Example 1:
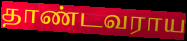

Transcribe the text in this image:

தாண்டவராய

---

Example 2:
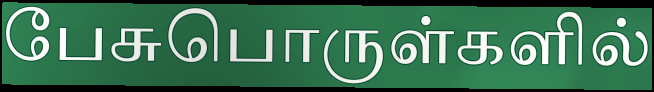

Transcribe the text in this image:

பேசுபொருள்களில்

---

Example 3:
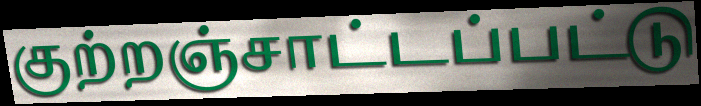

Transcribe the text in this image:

குற்றஞ்சாட்டப்பட்டு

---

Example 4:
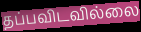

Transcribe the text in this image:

தப்பவிடவில்லை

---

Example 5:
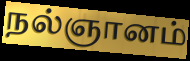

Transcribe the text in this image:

நல்ஞானம்